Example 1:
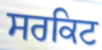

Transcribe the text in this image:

ਸਰਕਿਟ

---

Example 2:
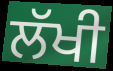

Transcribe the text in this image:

ਲੱਖੀ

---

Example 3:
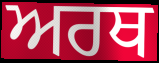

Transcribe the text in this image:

ਅਰਥ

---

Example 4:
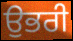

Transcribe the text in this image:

ਉਭਰੀ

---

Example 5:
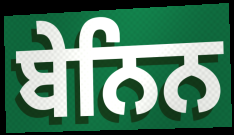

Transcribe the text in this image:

ਬੇਨਿਨ